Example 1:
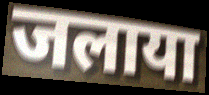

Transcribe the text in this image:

जलाया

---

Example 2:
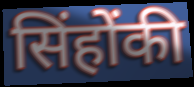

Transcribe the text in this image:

सिंहोंकी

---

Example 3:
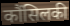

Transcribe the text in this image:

कौंसिलकी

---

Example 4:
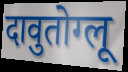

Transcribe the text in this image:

दावुतोग्लू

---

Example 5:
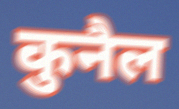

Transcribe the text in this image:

कुनैल